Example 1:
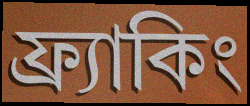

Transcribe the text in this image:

ফ্র্যাকিং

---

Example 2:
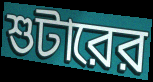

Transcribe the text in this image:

শুটারের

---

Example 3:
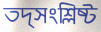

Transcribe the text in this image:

তদ্‌সংশ্লিষ্ট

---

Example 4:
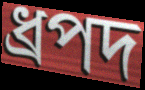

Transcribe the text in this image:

ধ্রপদ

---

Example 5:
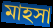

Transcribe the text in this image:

মাহসা